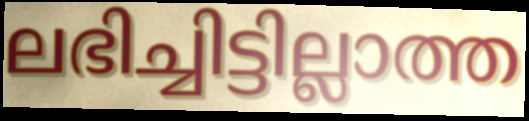
ലഭിച്ചിട്ടില്ലാത്ത